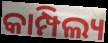
କାମ୍ପିଲ୍ୟ